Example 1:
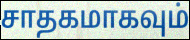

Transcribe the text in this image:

சாதகமாகவும்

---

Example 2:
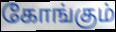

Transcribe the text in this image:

கோங்கும்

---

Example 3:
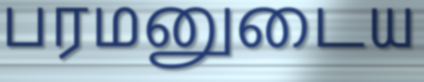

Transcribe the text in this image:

பரமனுடைய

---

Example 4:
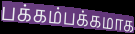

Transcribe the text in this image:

பக்கம்பக்கமாக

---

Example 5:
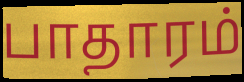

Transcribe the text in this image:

பாதாரம்